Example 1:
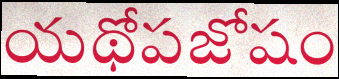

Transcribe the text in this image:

యథోపజోషం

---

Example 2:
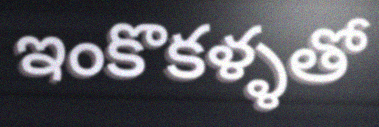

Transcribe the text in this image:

ఇంకొకళ్ళతో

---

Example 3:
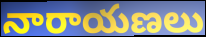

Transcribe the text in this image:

నారాయణలు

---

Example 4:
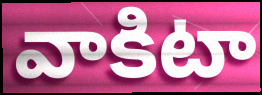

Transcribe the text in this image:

వాకిటా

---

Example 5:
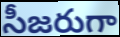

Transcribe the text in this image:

సీజరుగా